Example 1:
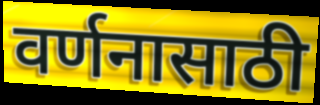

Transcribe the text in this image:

वर्णनासाठी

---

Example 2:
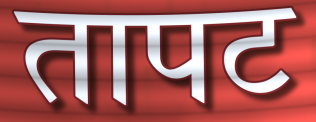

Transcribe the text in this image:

तापट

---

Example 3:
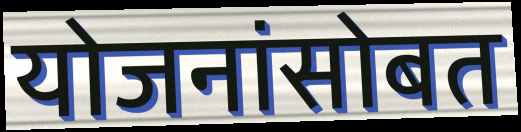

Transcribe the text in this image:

योजनांसोबत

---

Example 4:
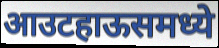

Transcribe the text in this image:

आउटहाऊसमध्ये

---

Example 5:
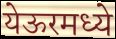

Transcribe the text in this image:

येऊरमध्ये